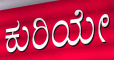
ಕುರಿಯೇ